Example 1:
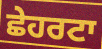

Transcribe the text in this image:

ਛੇਹਰਟਾ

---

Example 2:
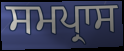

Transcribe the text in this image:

ਸਮਪ੍ਰਾਸ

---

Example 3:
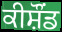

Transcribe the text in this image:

ਕੀਸ਼ੌਂਡ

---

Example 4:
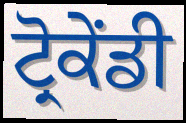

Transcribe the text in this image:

ਟ੍ਰੋਕੇਂਡੀ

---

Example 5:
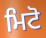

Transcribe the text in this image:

ਮਿਟੋ